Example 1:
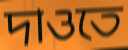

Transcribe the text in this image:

দাওতে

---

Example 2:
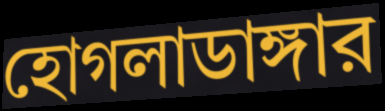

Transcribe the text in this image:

হোগলাডাঙ্গার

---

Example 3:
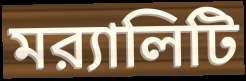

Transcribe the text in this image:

মর‍্যালিটি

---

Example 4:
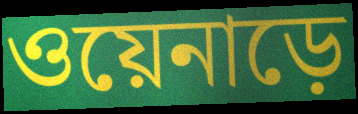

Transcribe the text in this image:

ওয়েনাড়ে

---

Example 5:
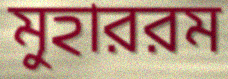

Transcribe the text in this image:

মুহাররম